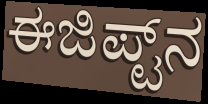
ಈಜಿಪ್ಟ್‌ನ